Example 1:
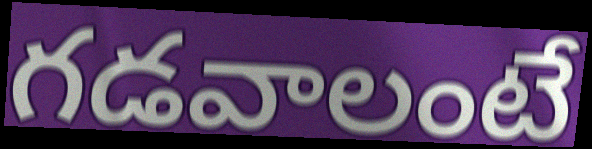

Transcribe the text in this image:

గడవాలంటే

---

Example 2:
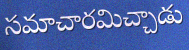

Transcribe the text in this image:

సమాచారమిచ్చాడు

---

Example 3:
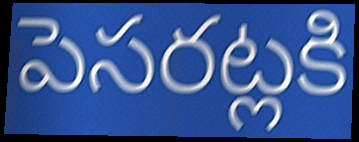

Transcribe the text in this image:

పెసరట్లకి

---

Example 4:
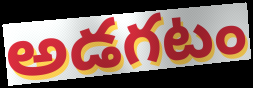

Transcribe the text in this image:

అడగటం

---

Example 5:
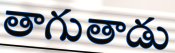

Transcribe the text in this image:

తాగుతాడు